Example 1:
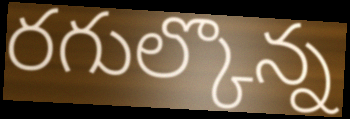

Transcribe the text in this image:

రగుల్కొన్న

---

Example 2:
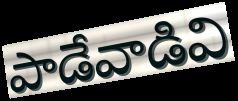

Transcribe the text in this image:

పాడేవాడివి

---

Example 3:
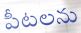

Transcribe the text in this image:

పీటలను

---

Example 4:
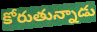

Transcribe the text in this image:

కోరుతున్నాడు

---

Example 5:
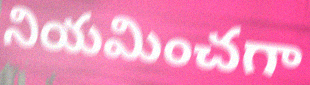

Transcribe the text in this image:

నియమించగా